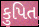
કુપિત